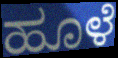
ಹೂಳೆ